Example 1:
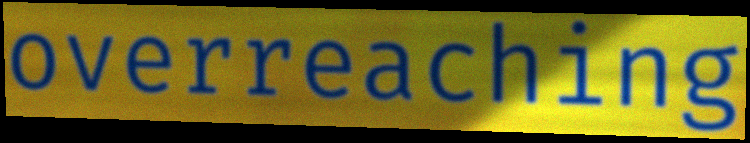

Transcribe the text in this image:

overreaching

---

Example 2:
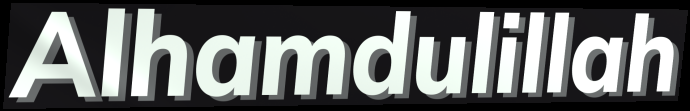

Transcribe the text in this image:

Alhamdulillah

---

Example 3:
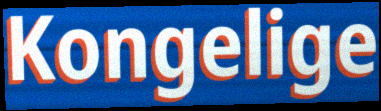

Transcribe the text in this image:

Kongelige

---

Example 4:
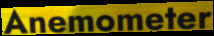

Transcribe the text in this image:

Anemometer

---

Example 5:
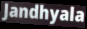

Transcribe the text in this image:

Jandhyala